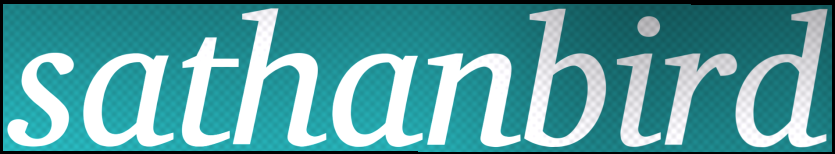
sathanbird